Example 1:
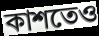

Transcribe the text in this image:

কাশতেও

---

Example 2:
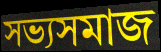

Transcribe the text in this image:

সভ্যসমাজ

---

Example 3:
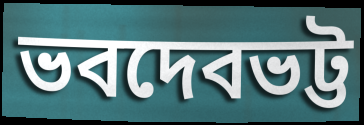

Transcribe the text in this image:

ভবদেবভট্ট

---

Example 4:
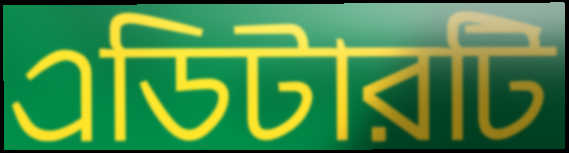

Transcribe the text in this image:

এডিটারটি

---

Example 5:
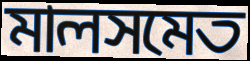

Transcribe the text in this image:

মালসমেত